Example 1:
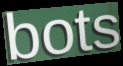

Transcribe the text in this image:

bots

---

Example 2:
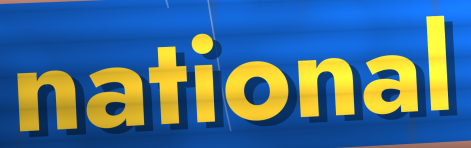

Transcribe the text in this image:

national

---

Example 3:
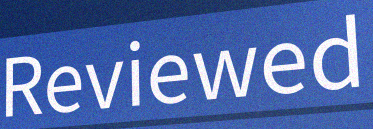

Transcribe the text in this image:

Reviewed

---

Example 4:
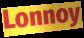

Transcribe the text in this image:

Lonnoy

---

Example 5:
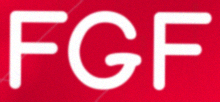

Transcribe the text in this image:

FGF